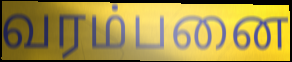
வரம்பனை